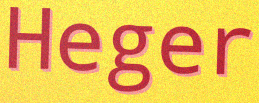
Heger